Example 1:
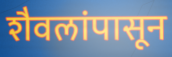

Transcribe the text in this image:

शैवलांपासून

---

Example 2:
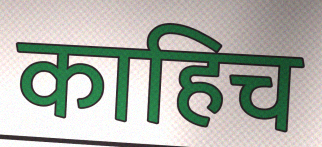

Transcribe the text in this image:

काहिच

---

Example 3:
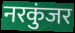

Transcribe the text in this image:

नरकुंजर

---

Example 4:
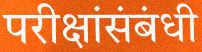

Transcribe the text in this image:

परीक्षांसंबंधी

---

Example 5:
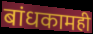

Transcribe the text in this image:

बांधकामही